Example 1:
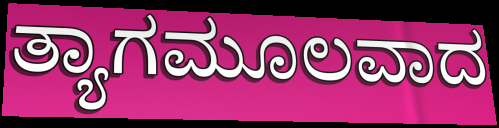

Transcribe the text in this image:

ತ್ಯಾಗಮೂಲವಾದ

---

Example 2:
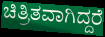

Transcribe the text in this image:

ಚಿತ್ರಿತವಾಗಿದ್ದರೆ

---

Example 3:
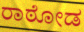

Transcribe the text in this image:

ರಾಠೋಡ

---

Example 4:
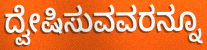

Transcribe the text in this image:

ದ್ವೇಷಿಸುವವರನ್ನೂ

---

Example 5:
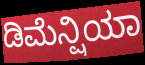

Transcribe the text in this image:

ಡಿಮೆನ್ಷಿಯಾ